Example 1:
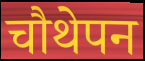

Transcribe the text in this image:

चौथेपन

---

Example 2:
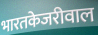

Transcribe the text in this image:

भारतकेजरीवाल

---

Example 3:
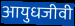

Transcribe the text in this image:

आयुधजीवी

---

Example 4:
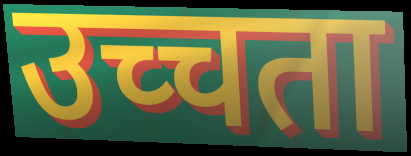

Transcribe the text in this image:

उच्चता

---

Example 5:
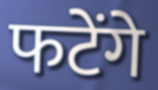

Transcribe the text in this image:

फटेंगे